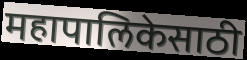
महापालिकेसाठी